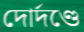
দোর্দণ্ডে